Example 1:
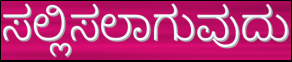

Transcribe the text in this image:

ಸಲ್ಲಿಸಲಾಗುವುದು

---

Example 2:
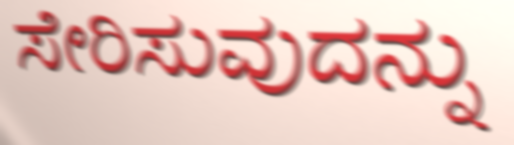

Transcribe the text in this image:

ಸೇರಿಸುವುದನ್ನು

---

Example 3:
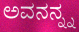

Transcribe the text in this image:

ಅವನನ್ನ್ನ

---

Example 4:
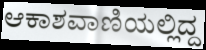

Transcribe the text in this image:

ಆಕಾಶವಾಣಿಯಲ್ಲಿದ್ದ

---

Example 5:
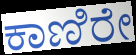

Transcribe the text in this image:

ಕಾಣಿರೇ